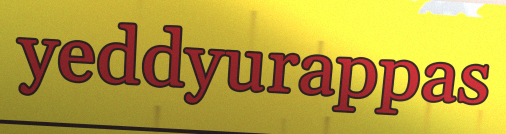
yeddyurappas